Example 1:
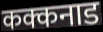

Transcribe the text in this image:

कक्कनाड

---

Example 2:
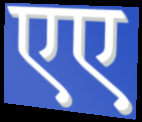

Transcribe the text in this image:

एए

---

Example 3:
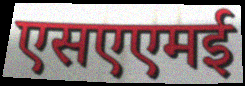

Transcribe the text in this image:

एसएएमई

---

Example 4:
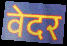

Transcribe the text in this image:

वेदर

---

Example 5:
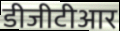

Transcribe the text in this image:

डीजीटीआर